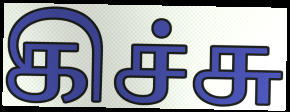
கிச்சு